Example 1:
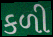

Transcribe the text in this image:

કળી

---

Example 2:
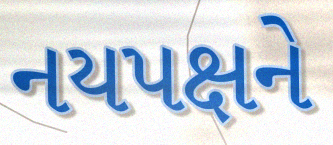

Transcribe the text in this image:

નયપક્ષને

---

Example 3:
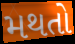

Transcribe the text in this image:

મથતો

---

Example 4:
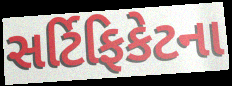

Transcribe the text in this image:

સર્ટિફિકેટના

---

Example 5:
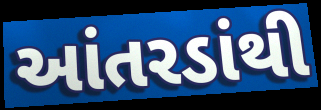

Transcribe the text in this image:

આંતરડાંથી